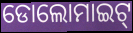
ଡୋଲୋମାଇଟ୍